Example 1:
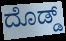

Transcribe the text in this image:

ದೊಡ್ಡ್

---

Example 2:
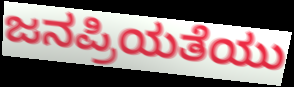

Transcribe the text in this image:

ಜನಪ್ರಿಯತೆಯು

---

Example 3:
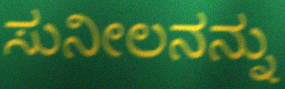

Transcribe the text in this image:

ಸುನೀಲನನ್ನು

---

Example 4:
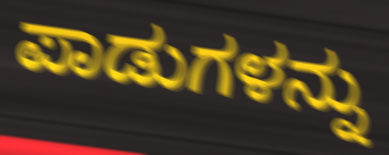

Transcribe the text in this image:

ಪಾಡುಗಳನ್ನು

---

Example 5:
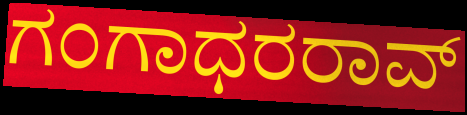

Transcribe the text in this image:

ಗಂಗಾಧರರಾವ್